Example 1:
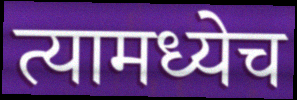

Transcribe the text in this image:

त्यामध्येच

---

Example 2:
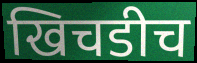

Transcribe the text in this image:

खिचडीच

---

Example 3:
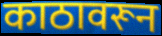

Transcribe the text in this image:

काठावरून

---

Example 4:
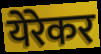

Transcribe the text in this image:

येरेकर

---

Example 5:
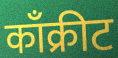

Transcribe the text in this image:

काँक्रीट